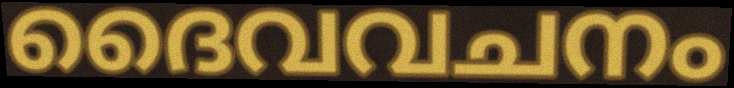
ദൈവവചനം